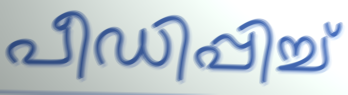
പീഡിപ്പിച്ച്